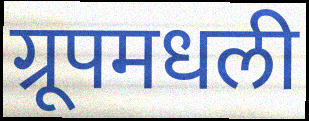
ग्रूपमधली